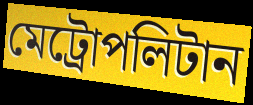
মেট্রোপলিটান